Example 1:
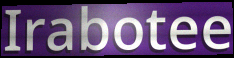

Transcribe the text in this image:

Irabotee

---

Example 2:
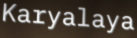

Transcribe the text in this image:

Karyalaya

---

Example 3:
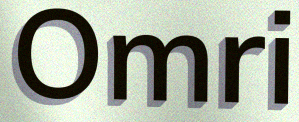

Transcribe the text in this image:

Omri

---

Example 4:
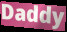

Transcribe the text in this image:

Daddy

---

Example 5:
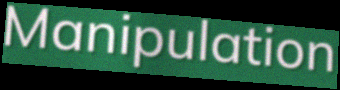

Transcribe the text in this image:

Manipulation